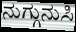
ನುಗ್ಗುನುಸಿ